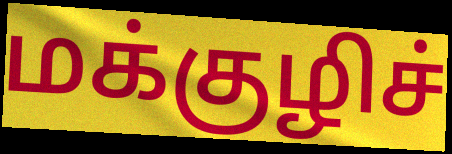
மக்குழிச்